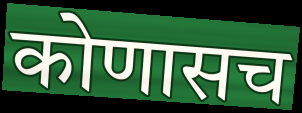
कोणासच